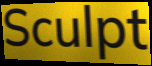
Sculpt